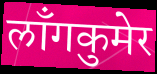
लाँगकुमेर